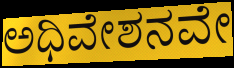
ಅಧಿವೇಶನವೇ